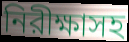
নিরীক্ষাসহ